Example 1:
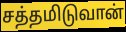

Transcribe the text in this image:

சத்தமிடுவான்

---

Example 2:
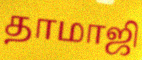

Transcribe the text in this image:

தாமாஜி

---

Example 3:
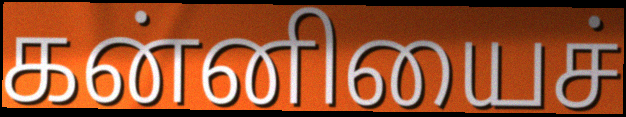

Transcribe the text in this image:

கன்னியைச்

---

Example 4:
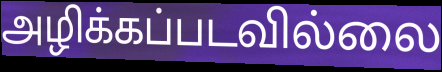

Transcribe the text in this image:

அழிக்கப்படவில்லை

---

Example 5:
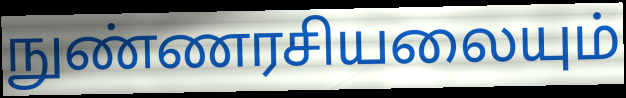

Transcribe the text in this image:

நுண்ணரசியலையும்